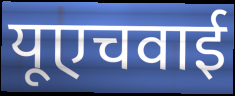
यूएचवाई